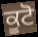
ਕੂਟੋ